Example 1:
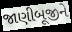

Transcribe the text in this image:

જાણીબૂજીને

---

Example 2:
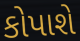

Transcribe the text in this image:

કોપાશે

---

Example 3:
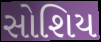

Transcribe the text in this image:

સોશિય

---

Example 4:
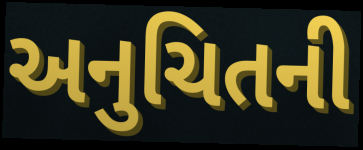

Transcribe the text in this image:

અનુચિતની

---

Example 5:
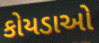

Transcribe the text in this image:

કોયડાઓ